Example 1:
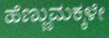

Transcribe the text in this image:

ಹೆಣ್ಣುಮಕ್ಕಳೇ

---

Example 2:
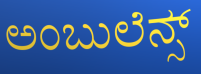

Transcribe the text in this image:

ಅಂಬುಲೆನ್ಸ್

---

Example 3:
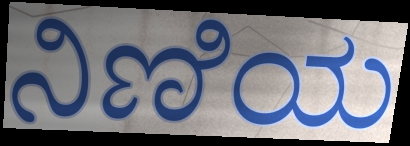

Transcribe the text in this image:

ನಿಣಿಯ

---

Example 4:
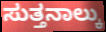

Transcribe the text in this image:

ಸುತ್ತನಾಲ್ಕು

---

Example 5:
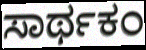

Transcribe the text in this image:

ಸಾರ್ಥಕಂ